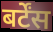
बर्टेंस